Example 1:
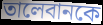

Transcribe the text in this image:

তালেবানকে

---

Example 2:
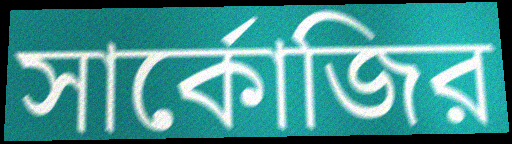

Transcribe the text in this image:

সার্কোজির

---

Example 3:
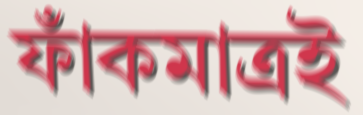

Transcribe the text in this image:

ফাঁকমাত্রই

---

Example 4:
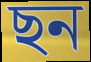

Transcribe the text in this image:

ছন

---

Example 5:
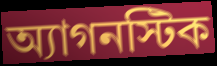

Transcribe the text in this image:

অ্যাগনস্টিক